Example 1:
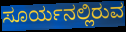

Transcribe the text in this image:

ಸೂರ್ಯನಲ್ಲಿರುವ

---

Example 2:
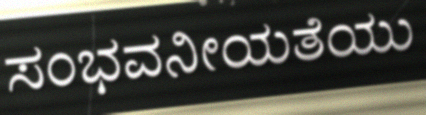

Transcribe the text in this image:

ಸಂಭವನೀಯತೆಯು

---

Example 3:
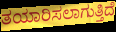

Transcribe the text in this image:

ತಯಾರಿಸಲಾಗುತ್ತಿದೆ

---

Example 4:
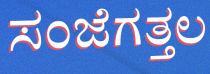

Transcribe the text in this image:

ಸಂಜೆಗತ್ತಲ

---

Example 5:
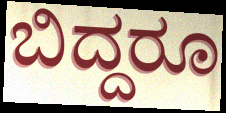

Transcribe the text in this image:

ಬಿದ್ದರೂ